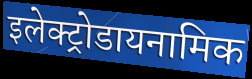
इलेक्ट्रोडायनामिक